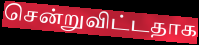
சென்றுவிட்டதாக